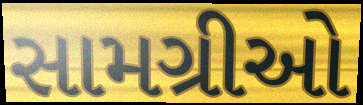
સામગ્રીઓ